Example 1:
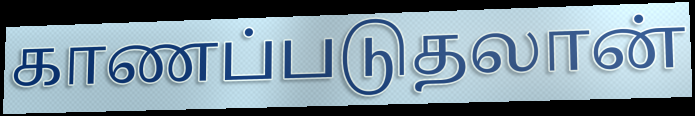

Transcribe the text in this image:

காணப்படுதலான்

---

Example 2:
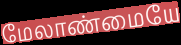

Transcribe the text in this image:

மேலாண்மையே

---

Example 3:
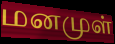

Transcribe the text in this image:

மனமுள்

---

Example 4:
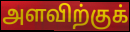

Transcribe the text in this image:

அளவிற்குக்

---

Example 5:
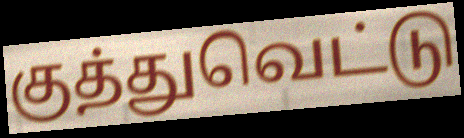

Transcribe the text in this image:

குத்துவெட்டு